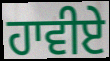
ਹਾਵੀਏ